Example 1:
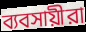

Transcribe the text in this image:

ব্যবসায়ীরা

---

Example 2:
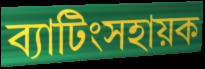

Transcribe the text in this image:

ব্যাটিংসহায়ক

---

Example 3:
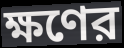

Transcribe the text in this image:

ক্ষণের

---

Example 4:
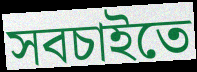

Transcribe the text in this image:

সবচাইতে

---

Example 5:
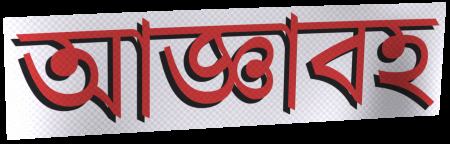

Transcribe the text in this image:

আজ্ঞাবহ